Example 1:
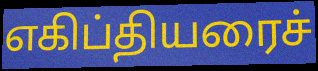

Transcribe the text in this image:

எகிப்தியரைச்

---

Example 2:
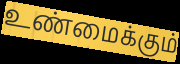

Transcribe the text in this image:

உண்மைக்கும்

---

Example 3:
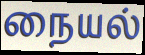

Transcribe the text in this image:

நையல்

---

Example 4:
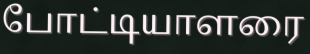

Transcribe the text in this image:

போட்டியாளரை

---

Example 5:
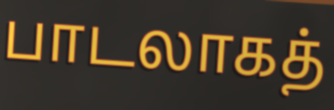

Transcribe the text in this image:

பாடலாகத்